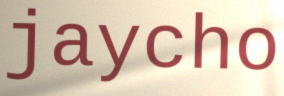
jaycho